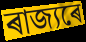
ৰাজ্যৰে